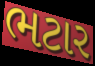
ભટાર